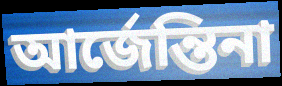
আর্জেন্তিনা